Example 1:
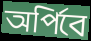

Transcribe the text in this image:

অর্পিবে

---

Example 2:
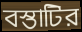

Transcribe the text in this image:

বস্তাটির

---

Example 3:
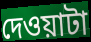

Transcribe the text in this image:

দেওয়াটা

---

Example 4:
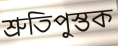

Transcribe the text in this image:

শ্রুতিপুস্তক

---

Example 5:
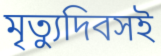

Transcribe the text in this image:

মৃত্যুদিবসই